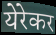
येरेकर